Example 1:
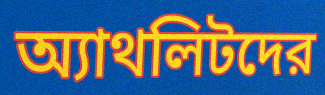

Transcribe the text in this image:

অ্যাথলিটদের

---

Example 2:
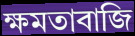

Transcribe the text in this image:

ক্ষমতাবাজি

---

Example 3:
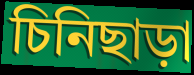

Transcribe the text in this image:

চিনিছাড়া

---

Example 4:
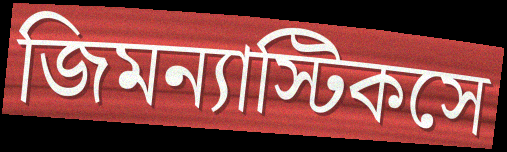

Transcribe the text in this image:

জিমন্যাস্টিকসে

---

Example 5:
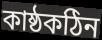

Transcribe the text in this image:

কাষ্ঠকঠিন